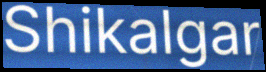
Shikalgar